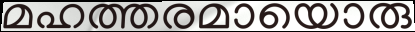
മഹത്തരമായൊരു